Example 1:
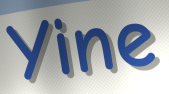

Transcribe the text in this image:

Yine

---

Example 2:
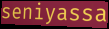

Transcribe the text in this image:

seniyassa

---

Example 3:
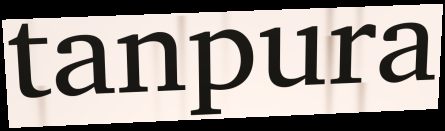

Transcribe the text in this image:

tanpura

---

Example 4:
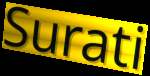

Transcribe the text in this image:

Surati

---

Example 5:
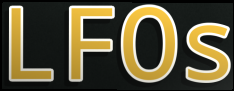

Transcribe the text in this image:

LFOs